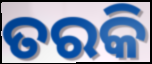
ତରକି